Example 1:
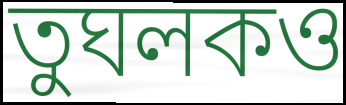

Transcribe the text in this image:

তুঘলকও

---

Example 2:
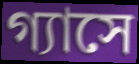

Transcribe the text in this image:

গ্যাসে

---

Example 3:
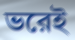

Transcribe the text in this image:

ভরেই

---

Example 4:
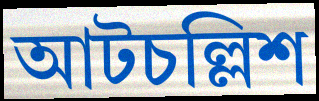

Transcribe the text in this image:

আটচল্লিশ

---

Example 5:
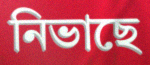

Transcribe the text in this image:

নিভাছে